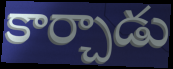
కార్చాడు